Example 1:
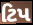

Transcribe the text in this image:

ટિપ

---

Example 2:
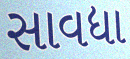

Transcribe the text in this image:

સાવદ્યા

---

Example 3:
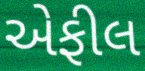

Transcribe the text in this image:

એફીલ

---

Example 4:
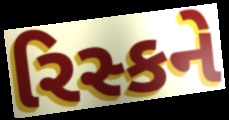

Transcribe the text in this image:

રિસ્કને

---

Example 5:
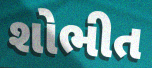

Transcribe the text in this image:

શોભીત